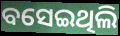
ବସେଇଥିଲି